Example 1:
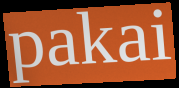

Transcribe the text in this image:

pakai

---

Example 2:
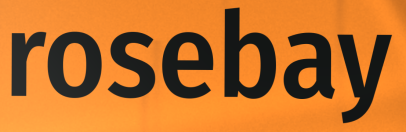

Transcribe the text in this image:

rosebay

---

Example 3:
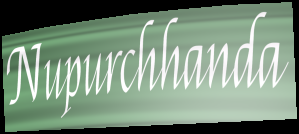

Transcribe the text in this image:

Nupurchhanda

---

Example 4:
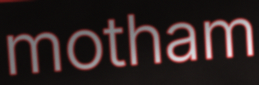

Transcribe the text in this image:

motham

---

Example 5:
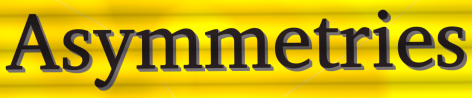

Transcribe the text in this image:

Asymmetries